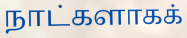
நாட்களாகக்